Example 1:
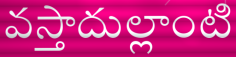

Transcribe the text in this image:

వస్తాదుల్లాంటి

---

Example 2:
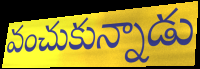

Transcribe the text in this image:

వంచుకున్నాడు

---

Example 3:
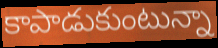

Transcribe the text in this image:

కాపాడుకుంటున్నా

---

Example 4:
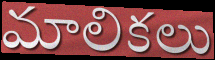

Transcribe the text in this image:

మాలికలు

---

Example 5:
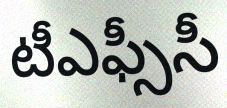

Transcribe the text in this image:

టీఎఫ్సీసీ